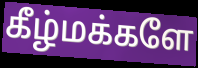
கீழ்மக்களே